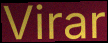
Virar